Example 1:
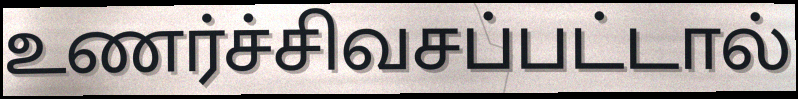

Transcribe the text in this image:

உணர்ச்சிவசப்பட்டால்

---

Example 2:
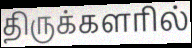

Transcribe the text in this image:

திருக்களரில்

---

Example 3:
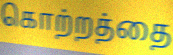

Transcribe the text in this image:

கொற்றத்தை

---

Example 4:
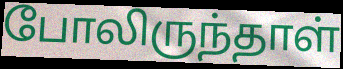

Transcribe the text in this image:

போலிருந்தாள்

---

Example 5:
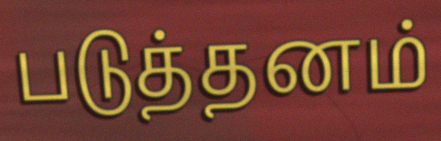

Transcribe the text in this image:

படுத்தனம்